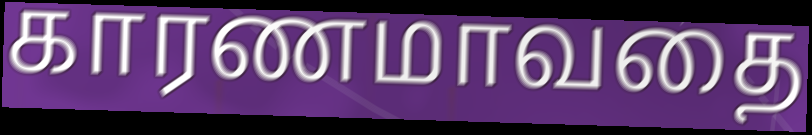
காரணமாவதை